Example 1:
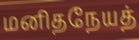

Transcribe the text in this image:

மனிதநேயத்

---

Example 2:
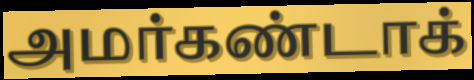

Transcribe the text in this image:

அமர்கண்டாக்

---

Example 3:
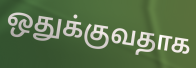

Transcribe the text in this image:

ஒதுக்குவதாக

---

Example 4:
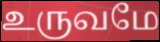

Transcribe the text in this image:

உருவமே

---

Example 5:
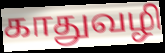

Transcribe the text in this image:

காதுவழி